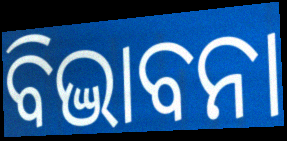
ବିଦ୍ଭାବନା